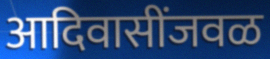
आदिवासींजवळ